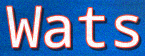
Wats